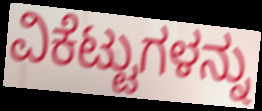
ವಿಕೆಟ್ಟುಗಳನ್ನು